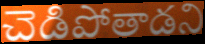
చెడిపోతాడని